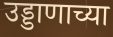
उड्डाणाच्या